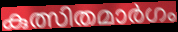
കുത്സിതമാർഗം